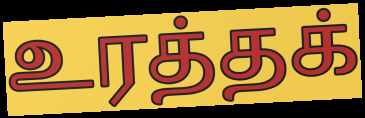
உரத்தக்